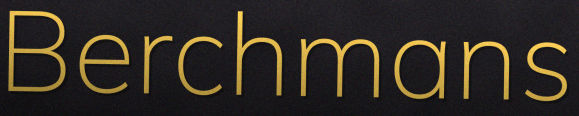
Berchmans